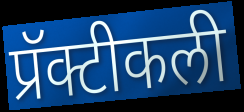
प्रॅक्टीकली